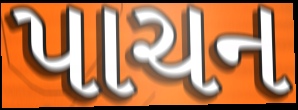
પાચન